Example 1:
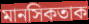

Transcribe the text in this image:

মানসিকতাক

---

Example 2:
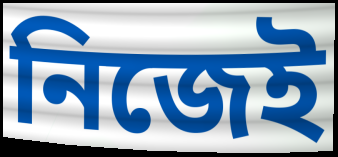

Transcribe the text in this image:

নিজেই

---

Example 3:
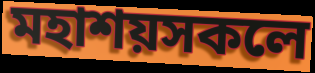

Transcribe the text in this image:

মহাশয়সকলে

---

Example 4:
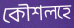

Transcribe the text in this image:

কৌশলহে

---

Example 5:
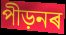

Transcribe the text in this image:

পীড়নৰ